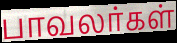
பாவலர்கள்